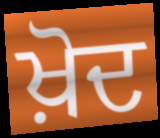
ਖ਼ੋਦ